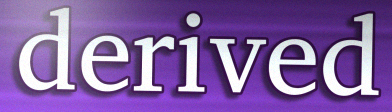
derived